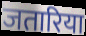
जतारिया